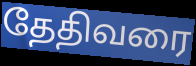
தேதிவரை